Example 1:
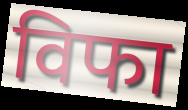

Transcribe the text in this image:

विफा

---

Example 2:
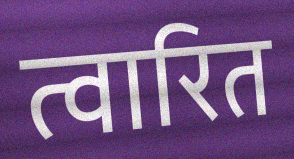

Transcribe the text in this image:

त्वारित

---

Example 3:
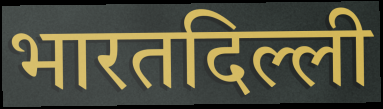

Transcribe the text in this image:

भारतदिल्ली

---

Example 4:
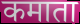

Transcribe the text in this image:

कमाता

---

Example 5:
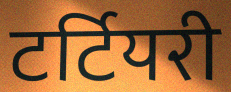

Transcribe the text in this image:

टर्टियरी